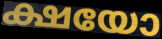
ക്ഷയോ